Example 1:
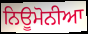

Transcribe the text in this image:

ਨਿਊਮੋਨੀਆ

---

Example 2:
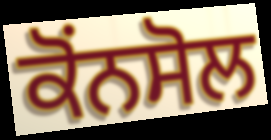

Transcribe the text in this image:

ਕੋਂਨਸੋਲ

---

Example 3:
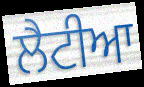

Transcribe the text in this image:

ਲੈਟੀਆ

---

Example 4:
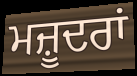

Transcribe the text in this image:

ਮਜ਼ੂਦਰਾਂ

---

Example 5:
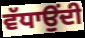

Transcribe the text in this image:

ਵੱਧਾਉਂਦੀ